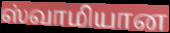
ஸ்வாமியான